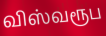
விஸ்வரூப